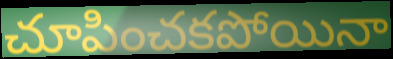
చూపించకపోయినా